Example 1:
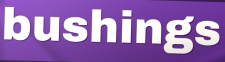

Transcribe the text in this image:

bushings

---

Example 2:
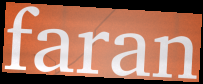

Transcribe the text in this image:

faran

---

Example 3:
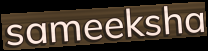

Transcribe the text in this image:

sameeksha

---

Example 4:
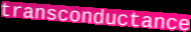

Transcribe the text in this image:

transconductance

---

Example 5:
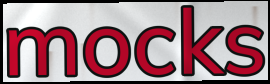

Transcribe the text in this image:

mocks